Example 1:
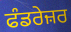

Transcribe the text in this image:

ਫੰਡਰੇਜ਼ਰ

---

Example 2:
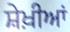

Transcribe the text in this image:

ਸ਼ੇਖ਼ੀਆਂ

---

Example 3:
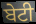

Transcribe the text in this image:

ਬੇਟੀ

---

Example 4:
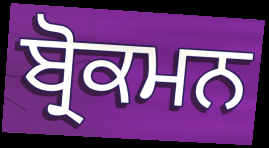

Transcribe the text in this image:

ਬ੍ਰੋਕਮਨ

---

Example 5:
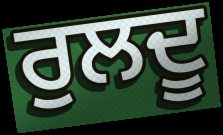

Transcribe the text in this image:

ਰੁਲਦੂ